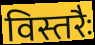
विस्तरैः